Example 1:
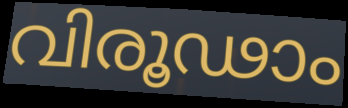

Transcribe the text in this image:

വിരൂഢാം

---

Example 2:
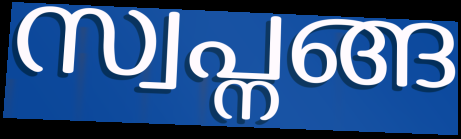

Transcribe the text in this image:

സ്വപ്നങ്ങ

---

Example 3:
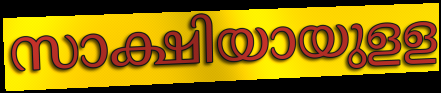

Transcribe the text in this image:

സാക്ഷിയായുളള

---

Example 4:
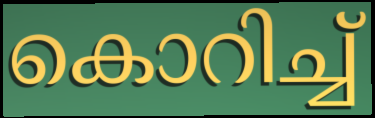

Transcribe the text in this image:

കൊറിച്ച്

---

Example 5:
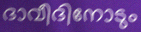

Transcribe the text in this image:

ദാവീദിനോടും